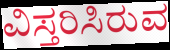
ವಿಸ್ತರಿಸಿರುವ